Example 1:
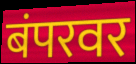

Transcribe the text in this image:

बंपरवर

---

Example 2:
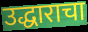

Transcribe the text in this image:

उद्धाराचा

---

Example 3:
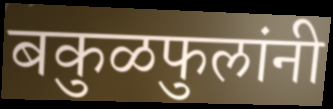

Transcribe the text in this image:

बकुळफुलांनी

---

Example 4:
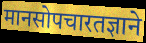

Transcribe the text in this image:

मानसोपचारतज्ञाने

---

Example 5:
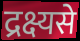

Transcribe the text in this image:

द्रक्ष्यसे